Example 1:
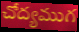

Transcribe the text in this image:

చోద్యముగ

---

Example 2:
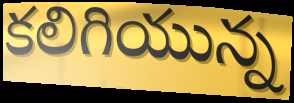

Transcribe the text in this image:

కలిగియున్న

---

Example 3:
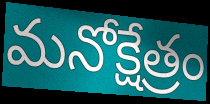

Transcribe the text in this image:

మనోక్షేత్రం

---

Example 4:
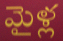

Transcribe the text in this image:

మైళ్ల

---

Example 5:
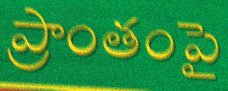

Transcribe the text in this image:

ప్రాంతంపై